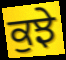
ਕੁਝੇ